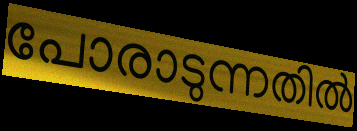
പോരാടുന്നതിൽ